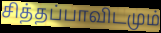
சித்தப்பாவிடமும்